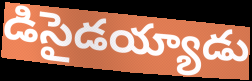
డిసైడయ్యాడు